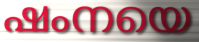
ഷംനയെ